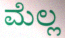
ಮೆಲ್ಲ